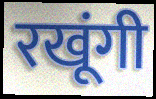
रखूंगी